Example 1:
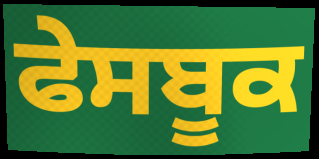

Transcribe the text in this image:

ਫੇਸਬੂਕ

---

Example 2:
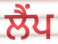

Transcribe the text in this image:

ਲੈਂਪ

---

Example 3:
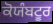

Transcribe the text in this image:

ਕੋਯੰਬਟੂਰ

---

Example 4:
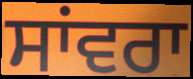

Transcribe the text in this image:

ਸਾਂਵਰਾ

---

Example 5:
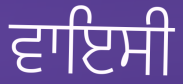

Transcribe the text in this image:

ਵਾਇਸੀ